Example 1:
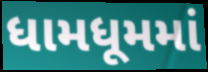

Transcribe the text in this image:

ધામધૂમમાં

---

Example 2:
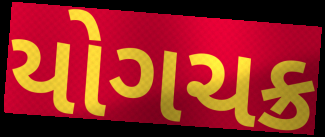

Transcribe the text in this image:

યોગચક્ર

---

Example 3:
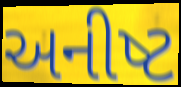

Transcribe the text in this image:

અનીષ્ટ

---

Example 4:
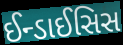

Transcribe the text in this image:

ઈન્ડાઈસિસ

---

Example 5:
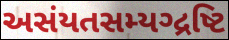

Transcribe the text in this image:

અસંયતસમ્યગ્દ્રષ્ટિ